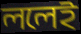
ললেই